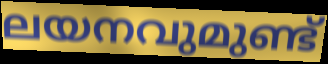
ലയനവുമുണ്ട്